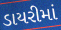
ડાયરીમાં